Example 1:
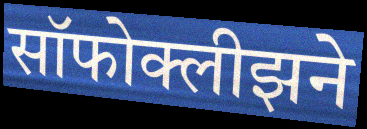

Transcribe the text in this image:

सॉफोक्लीझने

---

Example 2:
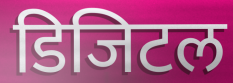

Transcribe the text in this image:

डिजिटल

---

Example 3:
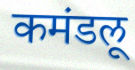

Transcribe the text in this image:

कमंडलू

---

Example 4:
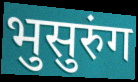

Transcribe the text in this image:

भुसुरुंग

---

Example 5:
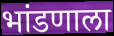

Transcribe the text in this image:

भांडणाला